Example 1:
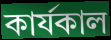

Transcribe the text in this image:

কাৰ্যকাল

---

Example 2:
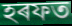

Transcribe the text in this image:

হৰফত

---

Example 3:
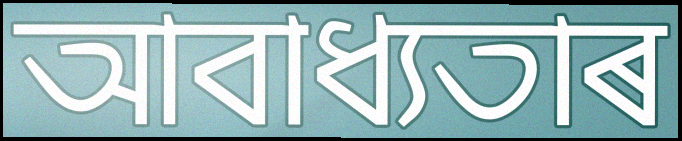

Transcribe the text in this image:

আবাধ্যতাৰ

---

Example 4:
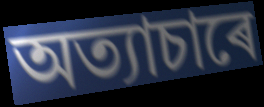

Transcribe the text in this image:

অত্যাচাৰে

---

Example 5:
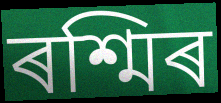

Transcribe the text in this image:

ৰশ্মিৰ